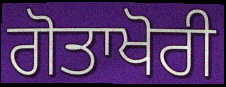
ਗੋਤਾਖੋਰੀ